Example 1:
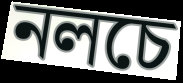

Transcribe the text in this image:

নলচে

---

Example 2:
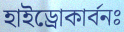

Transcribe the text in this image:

হাইড্রোকার্বনঃ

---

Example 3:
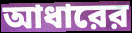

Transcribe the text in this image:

আধারের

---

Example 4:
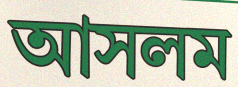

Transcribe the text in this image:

আসলম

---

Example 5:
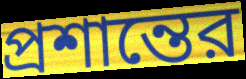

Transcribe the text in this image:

প্রশান্তের